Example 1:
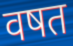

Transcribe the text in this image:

वषत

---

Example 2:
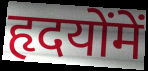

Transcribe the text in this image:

हृदयोंमें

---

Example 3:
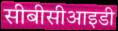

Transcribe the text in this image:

सीबीसीआइडी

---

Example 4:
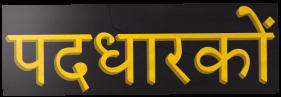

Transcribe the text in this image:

पदधारकों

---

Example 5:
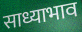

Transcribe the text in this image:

साध्याभाव